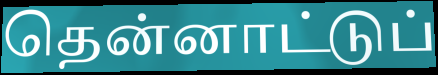
தென்னாட்டுப்